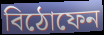
বিঠোফেন